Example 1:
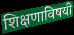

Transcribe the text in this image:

शिक्षणाविषयी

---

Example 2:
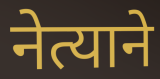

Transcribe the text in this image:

नेत्याने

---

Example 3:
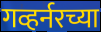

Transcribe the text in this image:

गव्हर्नरच्या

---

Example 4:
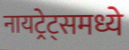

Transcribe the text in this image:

नायट्रेट्समध्ये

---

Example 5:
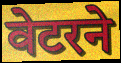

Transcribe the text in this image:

वेटरने